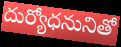
దుర్యోధనునితో